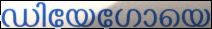
ഡിയേഗോയെ